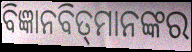
ବିଜ୍ଞାନବିତ୍‌ମାନଙ୍କର